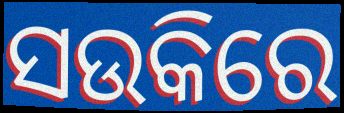
ସଉକିରେ